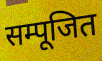
सम्पूजित